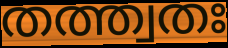
തത്ത്വതഃ